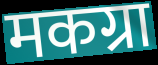
मकग्रा